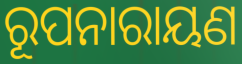
ରୂପନାରାୟଣ